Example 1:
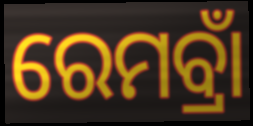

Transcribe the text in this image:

ରେମବ୍ରାଁ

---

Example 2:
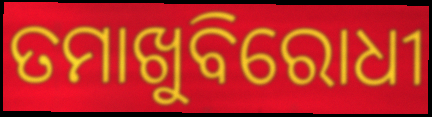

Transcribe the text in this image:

ତମାଖୁବିରୋଧୀ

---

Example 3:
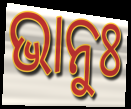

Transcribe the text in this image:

ଭାନୁଃ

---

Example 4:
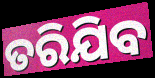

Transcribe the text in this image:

ତରିଯିବ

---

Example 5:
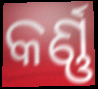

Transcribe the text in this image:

କର୍ଣ୍ଣ